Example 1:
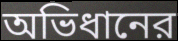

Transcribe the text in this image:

অভিধানের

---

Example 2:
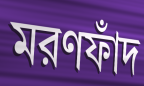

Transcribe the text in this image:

মরণফাঁদ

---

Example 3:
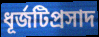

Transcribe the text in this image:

ধূর্জটিপ্রসাদ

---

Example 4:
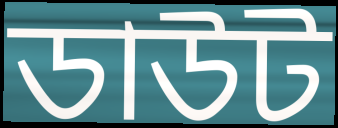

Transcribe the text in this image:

ডাউট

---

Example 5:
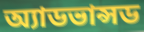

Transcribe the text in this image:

অ্যাডভান্সড